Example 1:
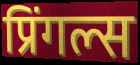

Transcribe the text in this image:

प्रिंगल्स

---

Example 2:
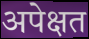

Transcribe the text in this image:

अपेक्षत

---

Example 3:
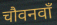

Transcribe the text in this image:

चौवनवाँ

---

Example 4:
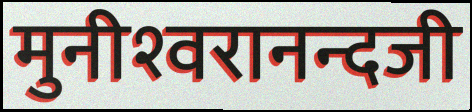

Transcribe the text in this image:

मुनीश्वरानन्दजी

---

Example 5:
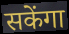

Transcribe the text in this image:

सकेंगा